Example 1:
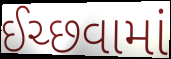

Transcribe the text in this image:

ઈચ્છવામાં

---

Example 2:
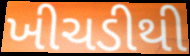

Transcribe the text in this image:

ખીચડીથી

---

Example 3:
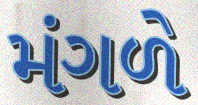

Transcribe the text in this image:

મંગળે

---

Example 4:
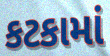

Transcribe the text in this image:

કટકામાં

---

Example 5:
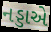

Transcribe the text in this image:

નડ્ડાએ